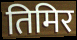
तिमिर